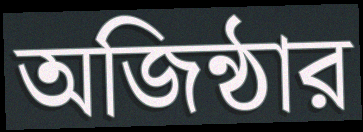
অজিন্ঠার